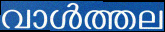
വാൾത്തല